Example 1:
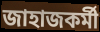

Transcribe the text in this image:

জাহাজকর্মী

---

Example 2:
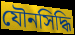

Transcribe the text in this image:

যৌনসিদ্ধি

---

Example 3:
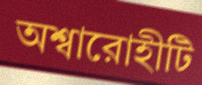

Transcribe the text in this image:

অশ্বারোহীটি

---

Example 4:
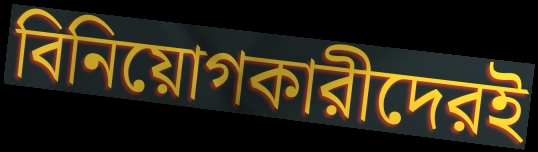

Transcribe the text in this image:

বিনিয়োগকারীদেরই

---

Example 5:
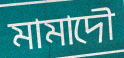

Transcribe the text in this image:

মামাদৌ